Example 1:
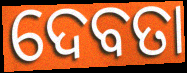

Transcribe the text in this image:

ଦେବତା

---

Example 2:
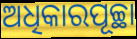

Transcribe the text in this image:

ଅଧିକାରପୂଚ୍ଛା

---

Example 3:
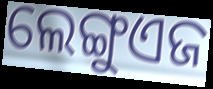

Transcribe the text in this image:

ଲେଙ୍ଗୁଏଜ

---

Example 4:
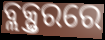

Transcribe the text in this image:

ବ୍ଲକ୍ସ୍ତରରେ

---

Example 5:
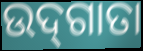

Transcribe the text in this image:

ଉଦ୍‌ଗାତା